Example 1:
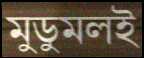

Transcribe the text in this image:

মুডুমলই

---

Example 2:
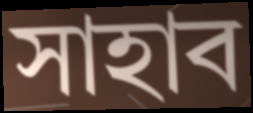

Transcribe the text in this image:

সাহাব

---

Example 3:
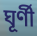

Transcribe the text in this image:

ঘূৰ্ণী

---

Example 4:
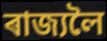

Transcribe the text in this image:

ৰাজ্যলৈ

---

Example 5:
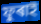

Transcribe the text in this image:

ফুৰাই